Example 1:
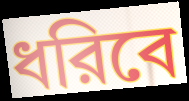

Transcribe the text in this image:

ধরিবে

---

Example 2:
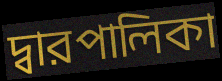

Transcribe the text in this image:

দ্বারপালিকা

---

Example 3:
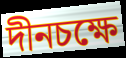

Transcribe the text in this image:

দীনচক্ষে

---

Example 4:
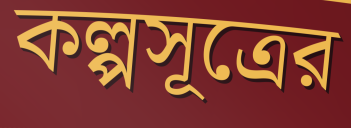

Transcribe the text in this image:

কল্পসূত্রের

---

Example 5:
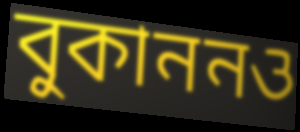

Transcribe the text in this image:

বুকাননও